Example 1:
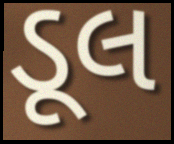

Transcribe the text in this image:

ડૂલ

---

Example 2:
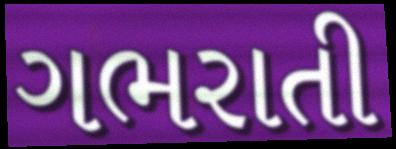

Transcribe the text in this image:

ગભરાતી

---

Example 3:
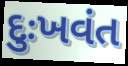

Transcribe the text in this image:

દુઃખવંત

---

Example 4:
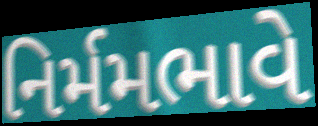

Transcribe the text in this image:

નિર્મમભાવે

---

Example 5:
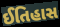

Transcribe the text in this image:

ઈતિહાસ